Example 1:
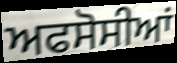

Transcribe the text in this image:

ਅਫਸੋਸੀਆਂ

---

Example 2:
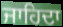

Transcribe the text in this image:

ਜਾਹਿਦਾ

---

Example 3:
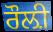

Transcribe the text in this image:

ਰੌਲ਼ੀ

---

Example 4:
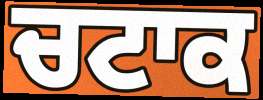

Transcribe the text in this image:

ਚਟਾਕ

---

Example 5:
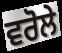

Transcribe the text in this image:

ਵਰੋਲੇ